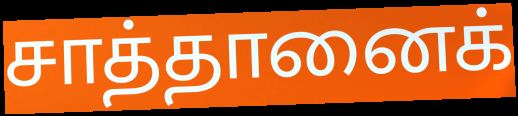
சாத்தானைக்